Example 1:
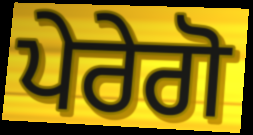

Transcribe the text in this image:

ਪੇਰੇਗੋ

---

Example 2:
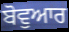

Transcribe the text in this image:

ਬੋਵੁਆਰ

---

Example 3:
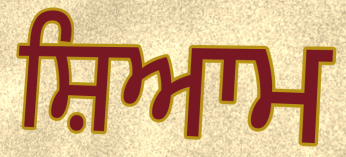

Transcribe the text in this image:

ਸ਼ਿਆਮ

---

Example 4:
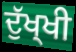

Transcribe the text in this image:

ਦੁੱਖ੍ਖੀ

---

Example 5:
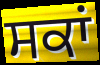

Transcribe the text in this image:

ਸਕਾਂ